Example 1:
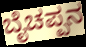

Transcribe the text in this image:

ಬೈಚಪ್ಪನ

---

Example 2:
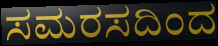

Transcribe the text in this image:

ಸಮರಸದಿಂದ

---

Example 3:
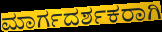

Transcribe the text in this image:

ಮಾರ್ಗದರ್ಶಕರಾಗಿ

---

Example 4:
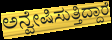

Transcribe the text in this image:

ಅನ್ವೇಷಿಸುತ್ತಿದ್ದಾರೆ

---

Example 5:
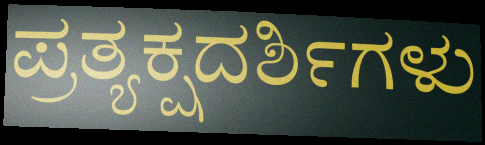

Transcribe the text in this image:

ಪ್ರತ್ಯಕ್ಷದರ್ಶಿಗಳು